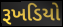
રૂખડિયો